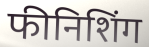
फीनिशिंग